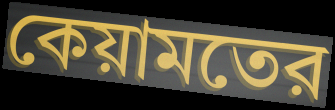
কেয়ামতের